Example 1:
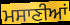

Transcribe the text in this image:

ਮਸਾਣੀਆਂ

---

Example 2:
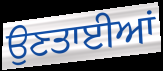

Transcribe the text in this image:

ਉਣਤਾਈਆਂ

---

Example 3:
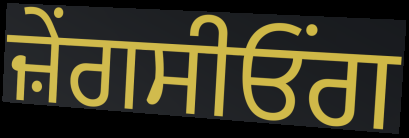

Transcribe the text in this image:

ਜ਼ੇਂਗਸੀਓਂਗ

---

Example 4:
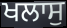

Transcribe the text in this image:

ਖਲਾਸੁ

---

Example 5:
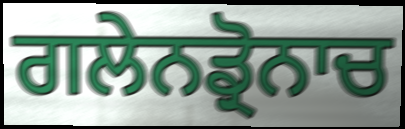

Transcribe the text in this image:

ਗਲੇਨਡ੍ਰੋਨਾਚ